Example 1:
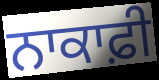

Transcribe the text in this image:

ਨਾਕਾਫ਼ੀ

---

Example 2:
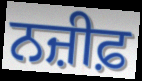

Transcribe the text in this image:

ਨਜ਼ੀਫ਼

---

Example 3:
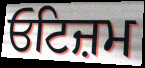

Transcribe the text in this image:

ਓਟਿਜ਼ਮ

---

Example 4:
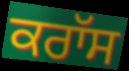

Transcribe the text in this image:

ਕਰਾੱਸ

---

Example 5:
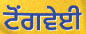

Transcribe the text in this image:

ਟੋਂਗਵੇਈ